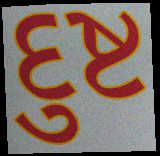
દુષ્ટ